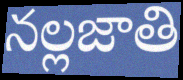
నల్లజాతి